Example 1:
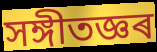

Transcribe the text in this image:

সঙ্গীতজ্ঞৰ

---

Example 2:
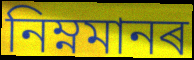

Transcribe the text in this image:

নিম্নমানৰ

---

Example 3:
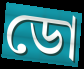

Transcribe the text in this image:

ডো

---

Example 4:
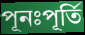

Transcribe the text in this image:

পূনঃপূৰ্তি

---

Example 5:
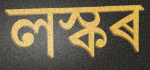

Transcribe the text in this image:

লস্কৰ